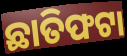
ଛାତିଫଟା